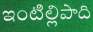
ఇంటిల్లిపాది